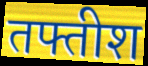
तफ्तीश